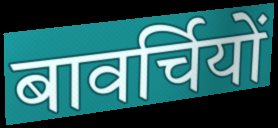
बावर्चियों